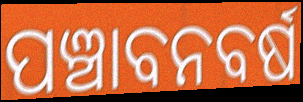
ପଞ୍ଚାବନବର୍ଷ